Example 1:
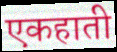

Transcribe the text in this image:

एकहाती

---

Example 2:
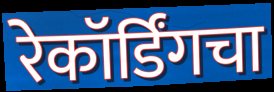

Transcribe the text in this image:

रेकॉर्डिंगचा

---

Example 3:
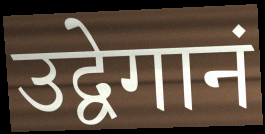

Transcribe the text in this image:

उद्वेगानं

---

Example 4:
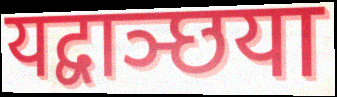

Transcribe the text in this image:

यद्वाञ्छया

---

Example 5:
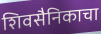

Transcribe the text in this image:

शिवसैनिकाचा